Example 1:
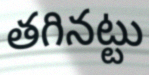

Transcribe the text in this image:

తగినట్టు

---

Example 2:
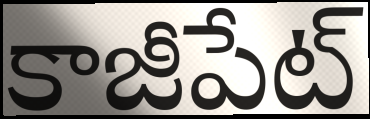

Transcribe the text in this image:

కాజీపేట్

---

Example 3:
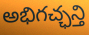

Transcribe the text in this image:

అభిగచ్ఛన్తి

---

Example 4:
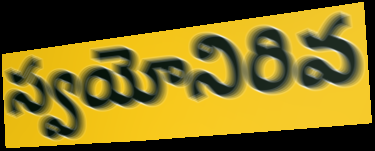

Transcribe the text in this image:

స్వయోనిరివ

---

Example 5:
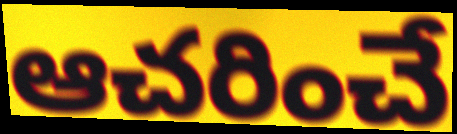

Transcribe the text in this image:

ఆచరించే